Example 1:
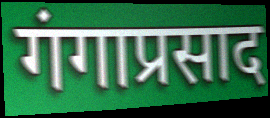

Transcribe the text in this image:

गंगाप्रसाद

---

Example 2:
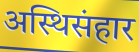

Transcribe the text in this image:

अस्थिसंहार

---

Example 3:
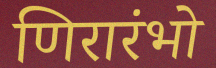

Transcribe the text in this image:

णिरारंभो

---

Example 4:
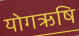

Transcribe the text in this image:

योगऋषि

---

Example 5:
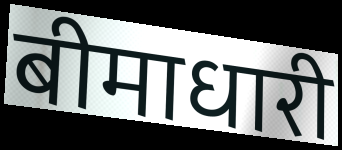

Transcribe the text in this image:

बीमाधारी